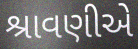
શ્રાવણીએ